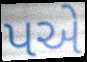
પએ